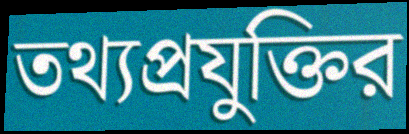
তথ্যপ্রযুক্তির